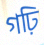
গঢ়ি